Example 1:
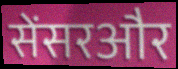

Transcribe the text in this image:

सेंसरऔर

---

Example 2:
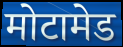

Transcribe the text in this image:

मोटामेड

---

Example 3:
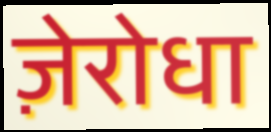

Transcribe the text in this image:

ज़ेरोधा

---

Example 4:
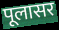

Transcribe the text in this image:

पूलासर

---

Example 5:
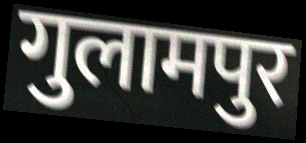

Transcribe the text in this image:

गुलामपुर